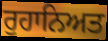
ਰੁਹਾਨਿਅਤ